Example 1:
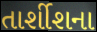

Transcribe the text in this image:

તાર્શીશના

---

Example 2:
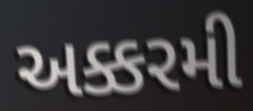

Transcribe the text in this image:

અક્કરમી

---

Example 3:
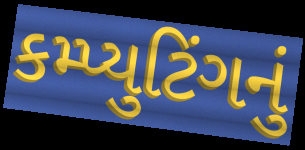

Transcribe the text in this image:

કમ્પ્યુટિંગનું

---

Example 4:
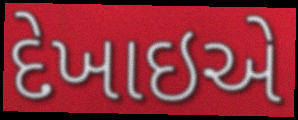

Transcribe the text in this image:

દેખાઇએ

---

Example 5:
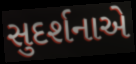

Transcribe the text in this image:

સુદર્શનાએ